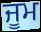
ਜੂਮ